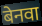
बेनवा